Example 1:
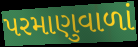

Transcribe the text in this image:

પરમાણુવાળાં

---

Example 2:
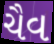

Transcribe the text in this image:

ચૈવ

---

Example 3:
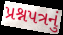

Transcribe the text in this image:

પ્રશ્નપત્રનું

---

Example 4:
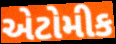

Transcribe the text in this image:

એટોમીક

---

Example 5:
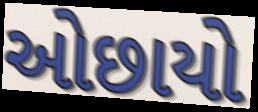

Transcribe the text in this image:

ઓછાયો